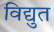
विद्युत